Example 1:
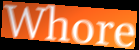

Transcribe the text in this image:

Whore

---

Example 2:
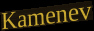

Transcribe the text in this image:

Kamenev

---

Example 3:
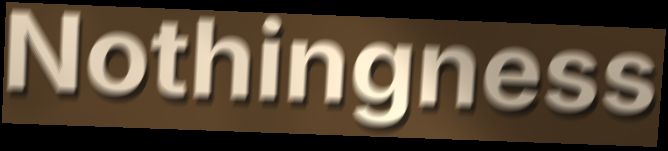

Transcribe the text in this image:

Nothingness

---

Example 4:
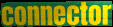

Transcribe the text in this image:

connector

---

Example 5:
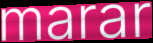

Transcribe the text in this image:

marar